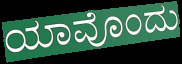
ಯಾವೊಂದು